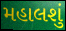
મહાલશું